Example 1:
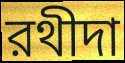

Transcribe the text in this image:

রথীদা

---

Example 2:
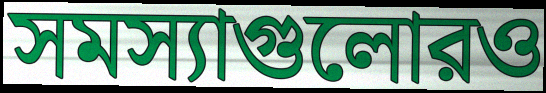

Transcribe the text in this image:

সমস্যাগুলোরও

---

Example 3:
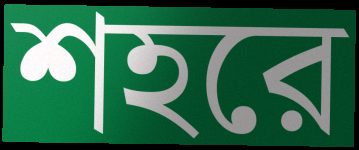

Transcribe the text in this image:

শহরে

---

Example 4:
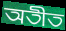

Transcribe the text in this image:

অতীত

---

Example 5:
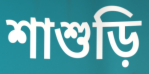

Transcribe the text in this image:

শাশুড়ি